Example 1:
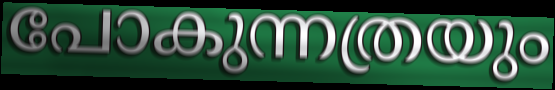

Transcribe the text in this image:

പോകുന്നത്രയും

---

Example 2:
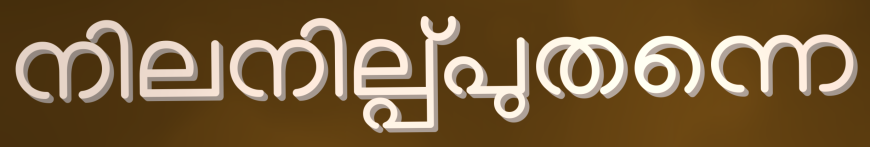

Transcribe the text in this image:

നിലനില്പ്പുതന്നെ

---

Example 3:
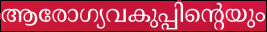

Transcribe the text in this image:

ആരോഗ്യവകുപ്പിന്റെയും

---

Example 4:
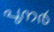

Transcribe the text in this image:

പുനർ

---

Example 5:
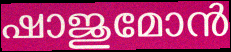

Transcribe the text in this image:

ഷാജുമോൻ